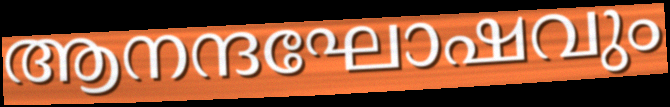
ആനന്ദഘോഷവും